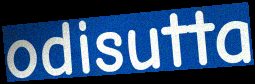
odisutta